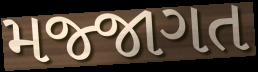
મજ્જાગત